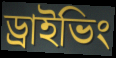
ড্ৰাইভিং